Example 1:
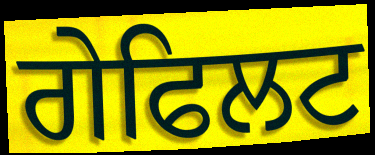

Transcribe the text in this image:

ਗੇਫਿਲਟ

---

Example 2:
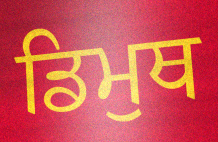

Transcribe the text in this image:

ਡਿਮੁਥ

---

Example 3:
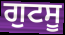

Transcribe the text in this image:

ਗੁਟਸੂ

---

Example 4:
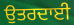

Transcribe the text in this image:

ਉਤਰਦਾਈ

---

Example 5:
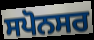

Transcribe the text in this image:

ਸਪੋਨਸਰ